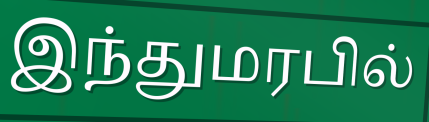
இந்துமரபில்